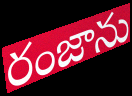
రంజాను